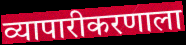
व्यापारीकरणाला